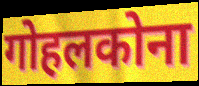
गोहलकोना